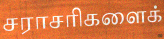
சராசரிகளைக்